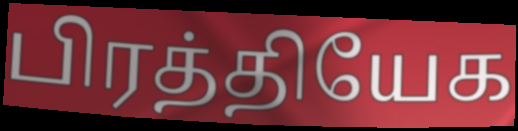
பிரத்தியேக